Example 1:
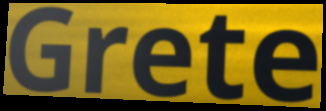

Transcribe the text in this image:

Grete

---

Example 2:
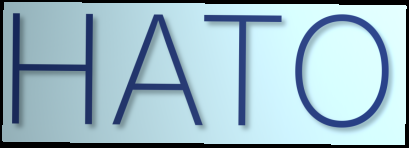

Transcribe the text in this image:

HATO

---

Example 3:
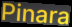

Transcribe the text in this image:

Pinara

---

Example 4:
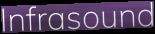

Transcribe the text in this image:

Infrasound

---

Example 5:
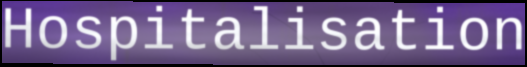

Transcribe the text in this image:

Hospitalisation